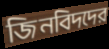
জিনবিদদের